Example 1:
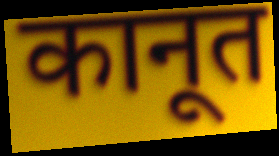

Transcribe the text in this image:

कानूत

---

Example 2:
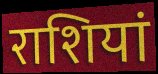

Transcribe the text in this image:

राशियां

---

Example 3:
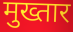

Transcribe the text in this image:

मुख्तार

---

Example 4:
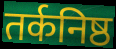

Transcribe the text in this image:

तर्कनिष्ठ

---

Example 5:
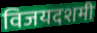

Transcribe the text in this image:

विजयदशमी